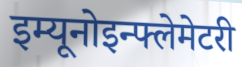
इम्यूनोइन्फ्लेमेटरी